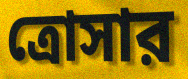
ত্রোসার